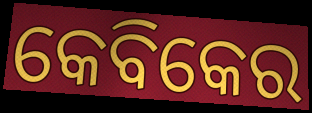
କେବିକେର